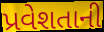
પ્રવેશતાની